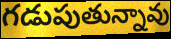
గడుపుతున్నావు